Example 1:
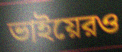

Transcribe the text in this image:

ভাইয়েরও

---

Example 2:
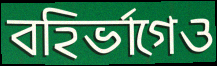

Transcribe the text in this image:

বহির্ভাগেও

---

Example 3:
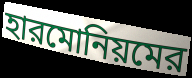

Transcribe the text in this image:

হারমোনিয়মের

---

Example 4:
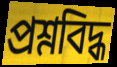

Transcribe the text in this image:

প্রশ্নবিদ্ধ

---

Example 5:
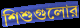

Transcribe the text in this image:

শিশুগুলোর